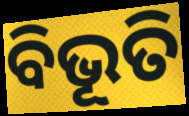
ବିଭୂତି